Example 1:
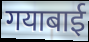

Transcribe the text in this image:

गयाबाई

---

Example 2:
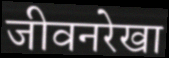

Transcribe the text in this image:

जीवनरेखा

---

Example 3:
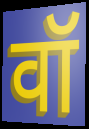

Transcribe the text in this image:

वॉ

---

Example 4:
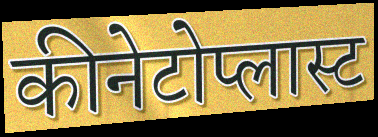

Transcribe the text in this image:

कीनेटोप्लास्ट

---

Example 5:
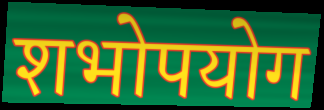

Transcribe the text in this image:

शभोपयोग